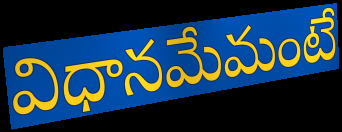
విధానమేమంటే